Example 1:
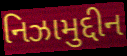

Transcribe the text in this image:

નિઝામુદ્દીન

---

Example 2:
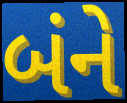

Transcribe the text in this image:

બંને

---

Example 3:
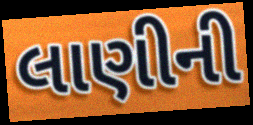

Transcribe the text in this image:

લાણીની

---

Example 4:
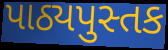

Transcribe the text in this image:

પાઠ્યપુસ્તક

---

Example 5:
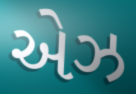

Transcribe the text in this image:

એઝ